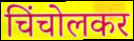
चिंचोलकर